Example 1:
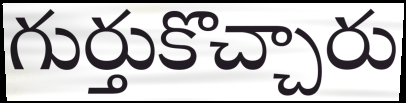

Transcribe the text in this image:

గుర్తుకొచ్చారు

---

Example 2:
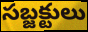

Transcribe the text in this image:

సబ్జక్టులు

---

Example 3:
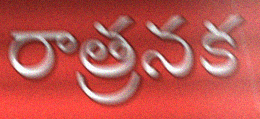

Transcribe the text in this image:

రాత్రనక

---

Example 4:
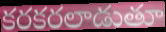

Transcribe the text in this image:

కరకరలాడుతూ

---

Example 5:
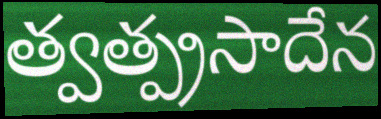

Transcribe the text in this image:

త్వత్ప్రసాదేన